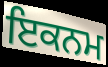
ਇਕਨਮ